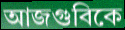
আজগুবিকে